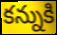
కన్నుకి